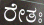
ರೇತಃ